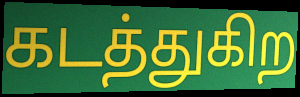
கடத்துகிற